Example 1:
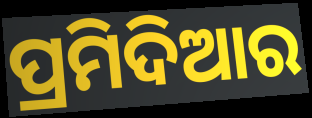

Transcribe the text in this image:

ପ୍ରମିଦିଆର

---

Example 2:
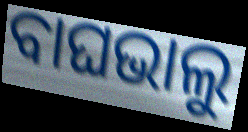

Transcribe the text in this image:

ବାଘଭାଲୁ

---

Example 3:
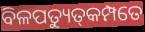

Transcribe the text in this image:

ବିଳପତ୍ୟୁତ୍‌କମ୍ପତେ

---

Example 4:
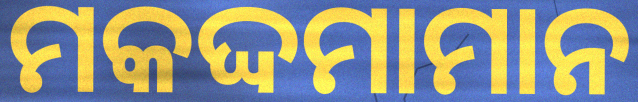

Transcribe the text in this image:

ମକଦ୍ଦମାମାନ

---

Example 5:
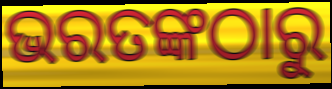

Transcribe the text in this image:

ଭରତଙ୍କଠାରୁ